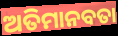
ଅତିମାନବତା